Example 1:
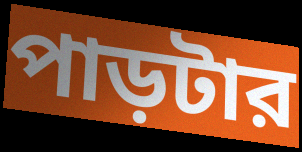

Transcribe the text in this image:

পাড়টার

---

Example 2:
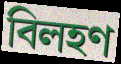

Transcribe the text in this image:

বিলহণ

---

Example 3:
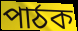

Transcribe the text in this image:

পাঠক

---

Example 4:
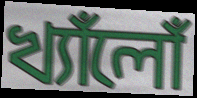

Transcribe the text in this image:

খ্যাঁলোঁ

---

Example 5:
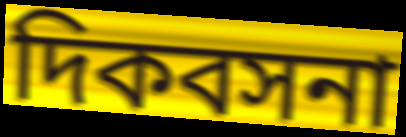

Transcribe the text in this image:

দিকবসনা